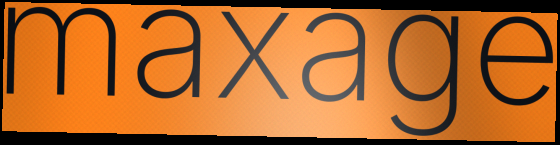
maxage